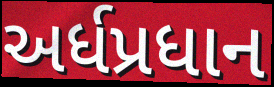
અર્ધપ્રધાન